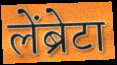
लेंब्रेटा